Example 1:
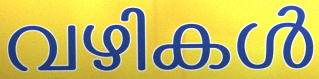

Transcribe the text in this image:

വഴികൾ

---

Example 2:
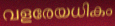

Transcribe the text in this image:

വളരേയധികം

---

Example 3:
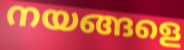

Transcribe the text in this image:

നയങ്ങളെ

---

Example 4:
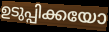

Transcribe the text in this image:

ഉടുപ്പിക്കയോ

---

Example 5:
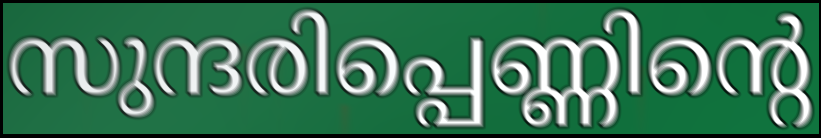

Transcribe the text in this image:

സുന്ദരിപ്പെണ്ണിന്റെ